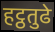
हट्ठतुढे